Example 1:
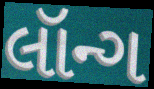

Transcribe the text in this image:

લૉન્ગ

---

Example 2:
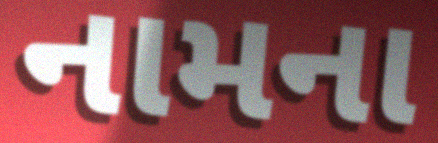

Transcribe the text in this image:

નામના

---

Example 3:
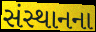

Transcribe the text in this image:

સંસ્થાનના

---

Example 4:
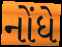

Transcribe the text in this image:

નોંધે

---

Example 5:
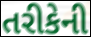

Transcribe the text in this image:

તરીકેની